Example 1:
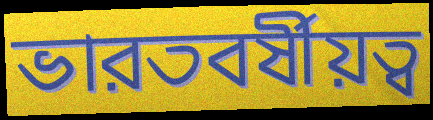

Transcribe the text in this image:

ভারতবর্ষীয়ত্ব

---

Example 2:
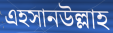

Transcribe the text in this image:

এহসানউল্লাহ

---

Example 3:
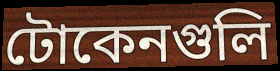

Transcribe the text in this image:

টোকেনগুলি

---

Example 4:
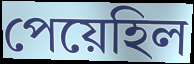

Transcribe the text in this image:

পেয়েহিল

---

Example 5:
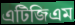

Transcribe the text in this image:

এটিজিএম